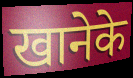
खानेके